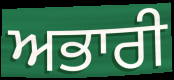
ਅਭਾਰੀ